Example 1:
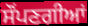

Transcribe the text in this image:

ਸੌਂਪਣਗੀਆਂ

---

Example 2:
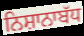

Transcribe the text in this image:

ਨਿਸ਼ਾਨਾਬੱਧ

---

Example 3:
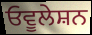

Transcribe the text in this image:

ਓਵੂਲੇਸ਼ਨ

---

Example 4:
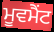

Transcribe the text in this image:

ਮੂਵਮੈਂਟ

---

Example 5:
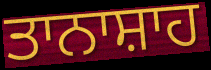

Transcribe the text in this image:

ਤਾਨਾਸ਼ਾਹ